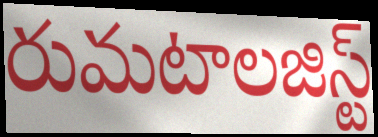
రుమటాలజిస్ట్